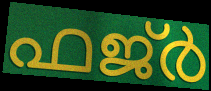
ഫജ്ർ